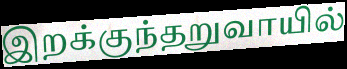
இறக்குந்தறுவாயில்